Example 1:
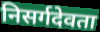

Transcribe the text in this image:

निसर्गदेवता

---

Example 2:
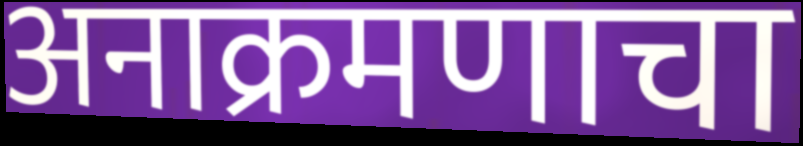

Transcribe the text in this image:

अनाक्रमणाचा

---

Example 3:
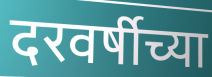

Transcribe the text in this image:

दरवर्षीच्या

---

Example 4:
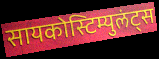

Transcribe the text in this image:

सायकोस्टिम्युलंट्स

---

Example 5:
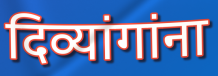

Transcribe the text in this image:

दिव्यांगांना